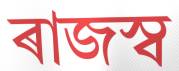
ৰাজস্ব